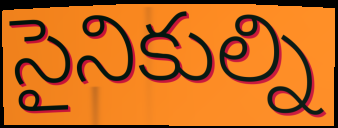
సైనికుల్ని